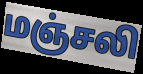
மஞ்சலி